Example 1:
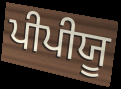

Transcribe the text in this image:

ਪੀਪੀਯੂ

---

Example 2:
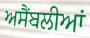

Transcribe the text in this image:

ਅਸੈਂਬਲੀਆਂ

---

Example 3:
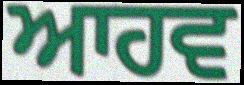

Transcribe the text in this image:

ਆਹਵ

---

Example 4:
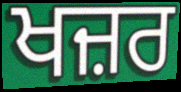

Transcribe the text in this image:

ਖਜ਼ਰ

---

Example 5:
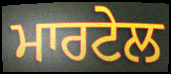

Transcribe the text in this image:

ਮਾਰਟੇਲ